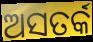
ଅସତର୍କ